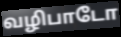
வழிபாடோ